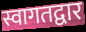
स्वागतद्वार